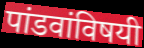
पांडवांविषयी